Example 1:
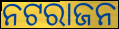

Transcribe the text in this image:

ନଟରାଜନ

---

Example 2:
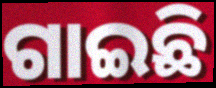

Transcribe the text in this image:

ଗାଇଛି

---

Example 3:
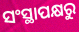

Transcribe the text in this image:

ସଂସ୍ଥାପକ୍ଷରୁ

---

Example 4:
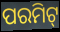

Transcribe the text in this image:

ପରମିଟ୍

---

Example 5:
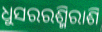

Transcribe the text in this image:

ଧୁସରରଶ୍ମିରାଶି